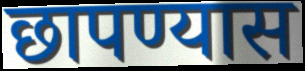
छापण्यास